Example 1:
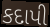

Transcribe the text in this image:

કદાપી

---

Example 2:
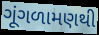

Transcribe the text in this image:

ગૂંગળામણથી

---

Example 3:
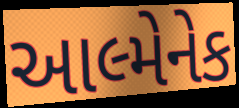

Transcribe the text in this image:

આલ્મેનેક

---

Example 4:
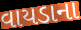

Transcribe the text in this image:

વાયડાના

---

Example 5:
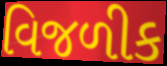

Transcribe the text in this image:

વિજળીક